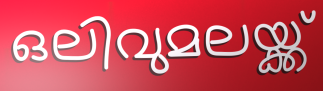
ഒലിവുമലയ്ക്ക്